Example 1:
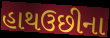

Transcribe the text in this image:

હાથઉછીના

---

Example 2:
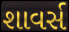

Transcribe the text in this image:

શાવર્સ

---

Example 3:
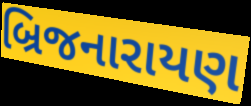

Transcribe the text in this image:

બ્રિજનારાયણ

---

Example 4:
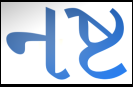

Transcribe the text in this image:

નષ્ટ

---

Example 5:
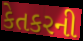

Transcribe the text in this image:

કેતકરની